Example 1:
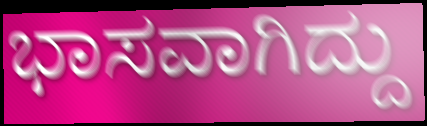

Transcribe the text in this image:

ಭಾಸವಾಗಿದ್ದು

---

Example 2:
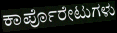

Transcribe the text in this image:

ಕಾರ್ಪೊರೇಟುಗಳು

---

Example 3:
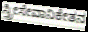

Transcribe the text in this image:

ಸ್ತ್ರೀಸೇವಾನಿಕೇತನ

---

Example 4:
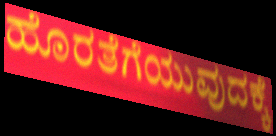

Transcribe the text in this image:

ಹೊರತೆಗೆಯುವುದಕ್ಕೆ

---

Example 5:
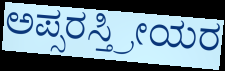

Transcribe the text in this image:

ಅಪ್ಸರಸ್ತ್ರೀಯರ